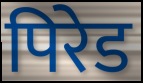
पिरेड